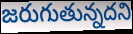
జరుగుతున్నదని